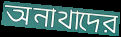
অনাথাদের